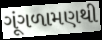
ગૂંગળામણથી